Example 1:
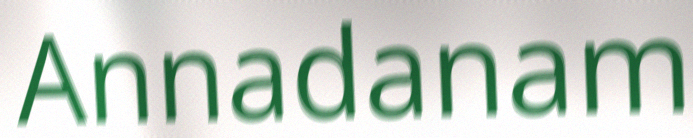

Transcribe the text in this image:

Annadanam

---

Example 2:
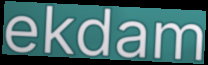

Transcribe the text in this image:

ekdam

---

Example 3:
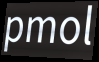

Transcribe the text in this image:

pmol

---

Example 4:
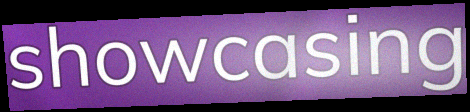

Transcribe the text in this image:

showcasing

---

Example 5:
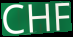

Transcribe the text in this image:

CHF